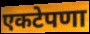
एकटेपणा